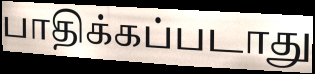
பாதிக்கப்படாது